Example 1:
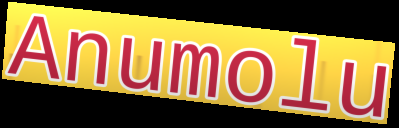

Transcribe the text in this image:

Anumolu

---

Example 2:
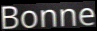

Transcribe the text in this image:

Bonne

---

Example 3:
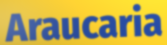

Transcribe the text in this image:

Araucaria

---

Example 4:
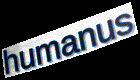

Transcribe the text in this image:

humanus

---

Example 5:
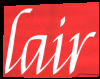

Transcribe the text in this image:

lair